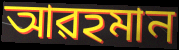
আৱহমান